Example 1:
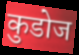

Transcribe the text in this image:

कुडोज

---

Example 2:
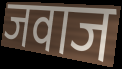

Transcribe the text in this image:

जवाज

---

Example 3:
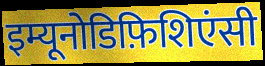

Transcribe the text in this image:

इम्यूनोडिफ़िशिएंसी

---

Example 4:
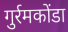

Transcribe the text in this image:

गुर्रमकोंडा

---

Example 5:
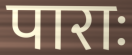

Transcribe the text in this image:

पाराः